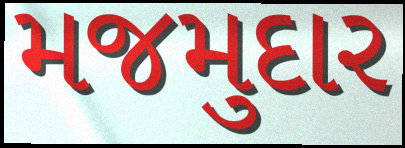
મજમુદાર